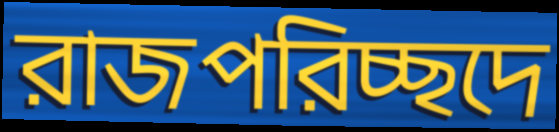
রাজপরিচ্ছদে